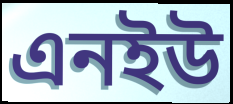
এনইউ